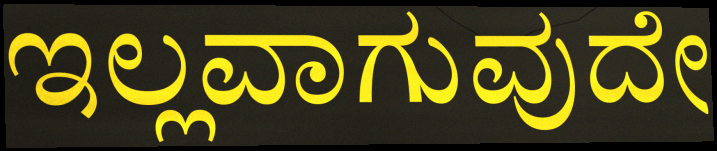
ಇಲ್ಲವಾಗುವುದೇ